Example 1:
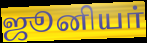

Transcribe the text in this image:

ஜூனியர்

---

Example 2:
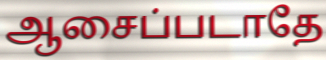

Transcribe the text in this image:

ஆசைப்படாதே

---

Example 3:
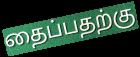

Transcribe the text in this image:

தைப்பதற்கு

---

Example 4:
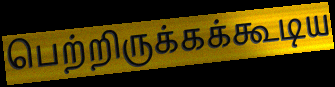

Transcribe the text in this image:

பெற்றிருக்கக்கூடிய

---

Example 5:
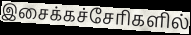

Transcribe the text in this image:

இசைக்கச்சேரிகளில்